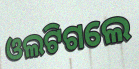
ଓଲଟିଗଲେ